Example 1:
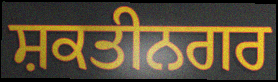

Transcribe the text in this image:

ਸ਼ਕਤੀਨਗਰ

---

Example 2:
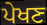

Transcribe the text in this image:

ਪੇਖਣ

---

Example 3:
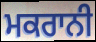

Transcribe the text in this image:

ਮਕਰਾਨੀ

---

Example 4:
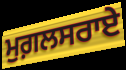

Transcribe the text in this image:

ਮੁਗ਼ਲਸਰਾਏ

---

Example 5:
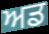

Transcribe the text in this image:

ਅਡ